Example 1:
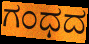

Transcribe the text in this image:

ಗಂಧದ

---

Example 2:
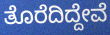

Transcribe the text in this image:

ತೊರೆದಿದ್ದೇವೆ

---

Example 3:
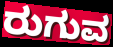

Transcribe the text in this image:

ರುಗುವ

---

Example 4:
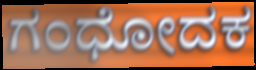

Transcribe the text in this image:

ಗಂಧೋದಕ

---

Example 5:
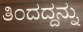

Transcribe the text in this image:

ತಿಂದದ್ದನ್ನು